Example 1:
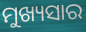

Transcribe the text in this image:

ମୁଖ୍ୟସାର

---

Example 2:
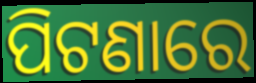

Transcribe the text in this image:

ପିଟଣାରେ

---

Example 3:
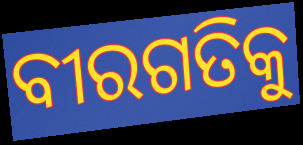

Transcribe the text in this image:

ବୀରଗତିକୁ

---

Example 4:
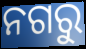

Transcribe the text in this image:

ନଗରୁ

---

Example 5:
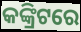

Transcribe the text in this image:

କଙ୍କ୍ରିଟରେ